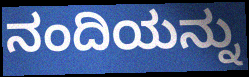
ನಂದಿಯನ್ನು